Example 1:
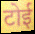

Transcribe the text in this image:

टोई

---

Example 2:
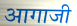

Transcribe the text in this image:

आगाजी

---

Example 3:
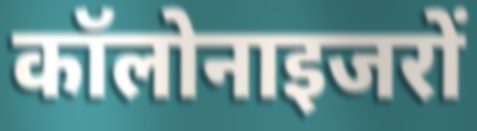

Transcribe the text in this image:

कॉलोनाइजरों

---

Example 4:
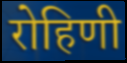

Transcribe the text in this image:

रोहिणी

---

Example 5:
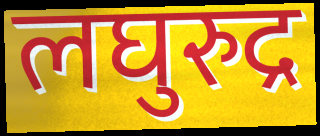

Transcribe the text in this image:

लघुरुद्र